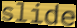
slide